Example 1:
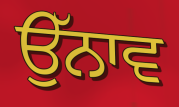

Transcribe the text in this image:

ਉੱਨਾਵ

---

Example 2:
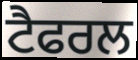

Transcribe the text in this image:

ਟੈਫਰਲ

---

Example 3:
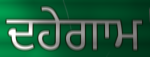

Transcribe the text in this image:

ਦਹੇਗਾਮ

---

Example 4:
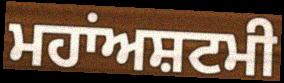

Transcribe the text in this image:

ਮਹਾਂਅਸ਼ਟਮੀ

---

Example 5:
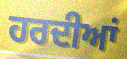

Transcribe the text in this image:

ਹਰਦੀਆਂ